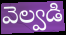
వెల్వడి